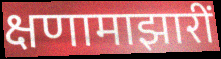
क्षणामाझारीं